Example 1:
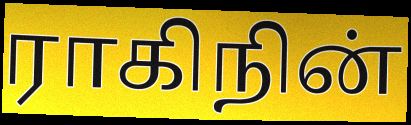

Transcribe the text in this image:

ராகிநின்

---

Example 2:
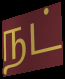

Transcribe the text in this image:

நட்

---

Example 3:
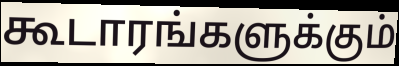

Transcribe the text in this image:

கூடாரங்களுக்கும்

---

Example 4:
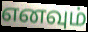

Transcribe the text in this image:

எனவும்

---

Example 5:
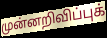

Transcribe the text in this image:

முன்னறிவிப்புக்